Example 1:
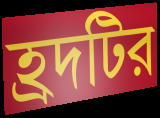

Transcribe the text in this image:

হ্রদটির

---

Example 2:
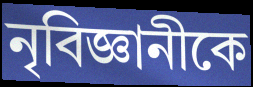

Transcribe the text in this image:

নৃবিজ্ঞানীকে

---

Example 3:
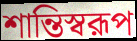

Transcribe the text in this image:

শান্তিস্বরূপ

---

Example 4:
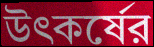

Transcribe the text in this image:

উৎকর্ষের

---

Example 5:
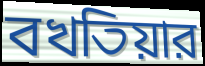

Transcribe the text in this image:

বখতিয়ার